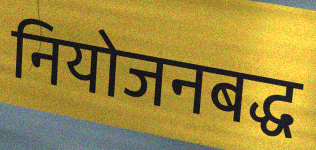
नियोजनबद्ध